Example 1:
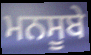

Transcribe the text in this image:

ਮਨਸੂਬੇ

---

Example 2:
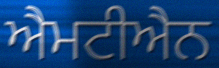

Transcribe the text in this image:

ਐਮਟੀਐਨ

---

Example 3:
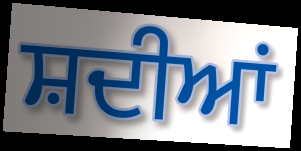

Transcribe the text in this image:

ਸ਼ਦੀਆਂ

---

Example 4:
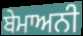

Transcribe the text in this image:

ਬੇਮਾਅਨੀ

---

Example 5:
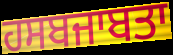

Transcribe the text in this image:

ਹਸਬਜਾਬਤਾ